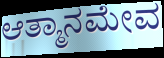
ಆತ್ಮಾನಮೇವ